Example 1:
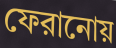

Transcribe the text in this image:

ফেরানোয়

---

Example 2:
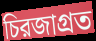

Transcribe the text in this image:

চিরজাগ্রত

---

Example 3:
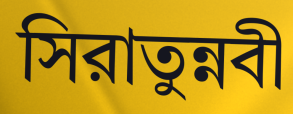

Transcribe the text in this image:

সিরাতুন্নবী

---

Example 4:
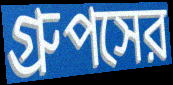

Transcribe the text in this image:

গ্রুপসের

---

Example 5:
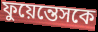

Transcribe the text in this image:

ফুয়েন্তেসকে